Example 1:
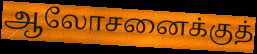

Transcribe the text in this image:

ஆலோசனைக்குத்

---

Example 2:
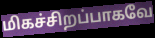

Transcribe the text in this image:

மிகச்சிறப்பாகவே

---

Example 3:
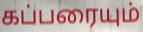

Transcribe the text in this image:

கப்பரையும்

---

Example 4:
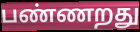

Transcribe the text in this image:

பண்ணறது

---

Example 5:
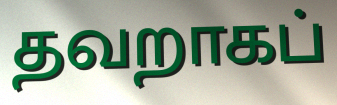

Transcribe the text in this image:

தவறாகப்